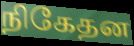
நிகேதன